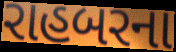
રાહબરના